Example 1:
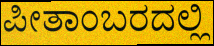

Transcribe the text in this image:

ಪೀತಾಂಬರದಲ್ಲಿ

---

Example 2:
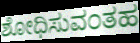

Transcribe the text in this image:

ಶೋಧಿಸುವಂತಹ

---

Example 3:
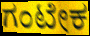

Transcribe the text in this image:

ಗಂಟೇಕ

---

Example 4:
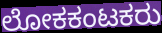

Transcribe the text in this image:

ಲೋಕಕಂಟಕರು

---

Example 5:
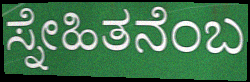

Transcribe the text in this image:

ಸ್ನೇಹಿತನೆಂಬ